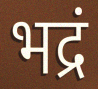
भद्रं